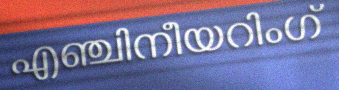
എഞ്ചിനീയറിംഗ്